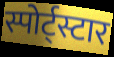
स्पोर्ट्स्टार